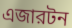
এজারটন